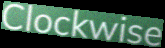
Clockwise